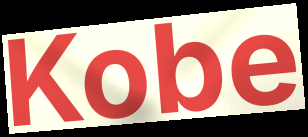
Kobe